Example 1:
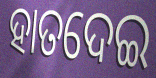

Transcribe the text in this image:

ହାତଦେଇ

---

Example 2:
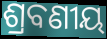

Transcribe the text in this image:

ଶ୍ରବଣୀୟ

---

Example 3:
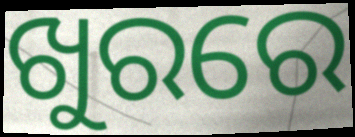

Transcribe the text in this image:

ଖୁରରେ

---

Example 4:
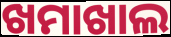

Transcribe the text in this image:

ଖମାଖାଲ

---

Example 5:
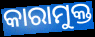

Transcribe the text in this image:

କାରାମୁକ୍ତ